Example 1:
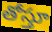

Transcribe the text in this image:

తోస్తూ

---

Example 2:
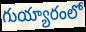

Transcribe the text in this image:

గుయ్యారంలో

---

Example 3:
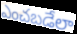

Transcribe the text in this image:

ఎంచబడేలా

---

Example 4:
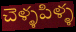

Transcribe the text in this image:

చెళ్ళపిళ్ళ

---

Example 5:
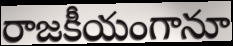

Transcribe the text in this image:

రాజకీయంగానూ